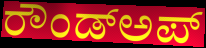
ರೌಂಡ್ಅಪ್